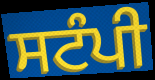
ਸਟੰਪੀ